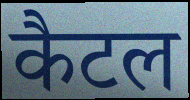
कैटल